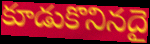
కూడుకొనినదై